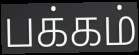
பக்கம்